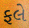
ફલે